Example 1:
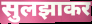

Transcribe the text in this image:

सुलझाकर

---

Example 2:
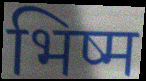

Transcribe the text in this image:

भिष्म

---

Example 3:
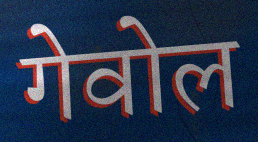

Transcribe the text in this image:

गेवोल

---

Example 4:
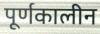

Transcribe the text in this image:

पूर्णकालीन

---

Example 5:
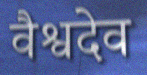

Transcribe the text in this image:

वैश्वदेव